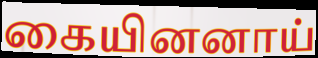
கையினனாய்